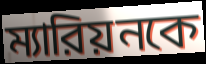
ম্যারিয়নকে